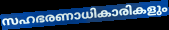
സഹഭരണാധികാരികളും